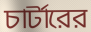
চার্টারের